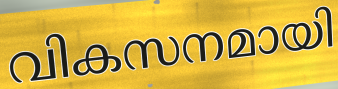
വികസനമായി